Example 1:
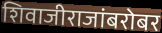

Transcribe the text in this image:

शिवाजीराजांबरोबर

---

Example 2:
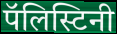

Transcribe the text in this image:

पॅलिस्टिनी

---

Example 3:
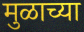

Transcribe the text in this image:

मुळाच्या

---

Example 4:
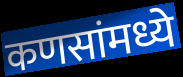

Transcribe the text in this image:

कणसांमध्ये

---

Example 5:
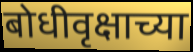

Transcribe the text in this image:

बोधीवृक्षाच्या